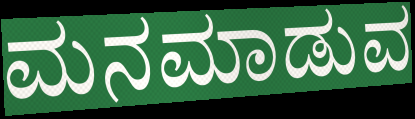
ಮನಮಾಡುವ